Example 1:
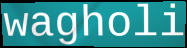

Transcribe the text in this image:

wagholi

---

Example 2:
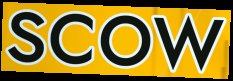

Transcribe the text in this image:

scow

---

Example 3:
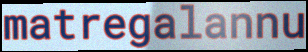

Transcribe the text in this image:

matregalannu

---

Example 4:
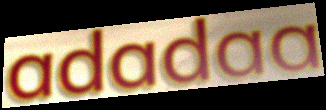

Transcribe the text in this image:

adadaa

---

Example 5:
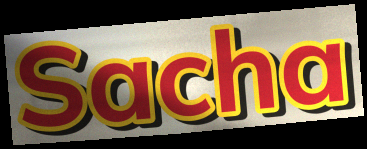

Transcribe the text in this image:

Sacha